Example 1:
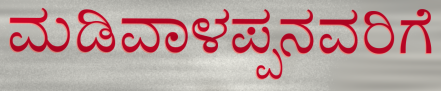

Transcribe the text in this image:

ಮಡಿವಾಳಪ್ಪನವರಿಗೆ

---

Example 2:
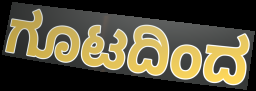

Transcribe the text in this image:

ಗೂಟದಿಂದ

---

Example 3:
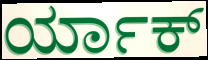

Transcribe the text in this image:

ರ್ಯಾಕ್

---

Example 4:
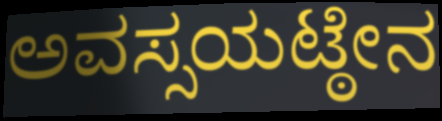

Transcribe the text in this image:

ಅವಸ್ಸಯಟ್ಠೇನ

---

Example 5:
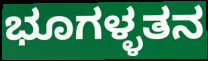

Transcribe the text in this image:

ಭೂಗಳ್ಳತನ